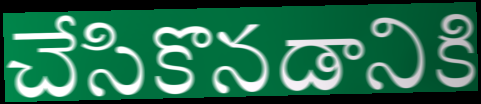
చేసికొనడానికి